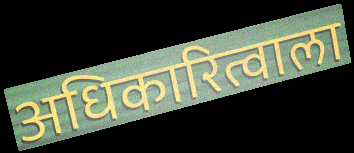
अधिकारित्वाला